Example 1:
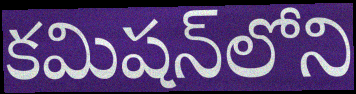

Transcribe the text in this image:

కమిషన్‌లోని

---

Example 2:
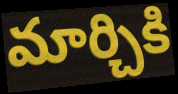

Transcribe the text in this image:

మార్చికి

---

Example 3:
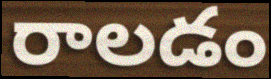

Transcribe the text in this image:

రాలడం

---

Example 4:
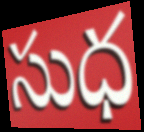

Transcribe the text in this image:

సుధ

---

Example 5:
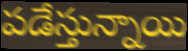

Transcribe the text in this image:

పడేస్తున్నాయి